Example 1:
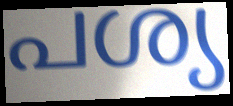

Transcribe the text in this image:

പശ്യ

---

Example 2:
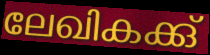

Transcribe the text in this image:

ലേഖികക്കു്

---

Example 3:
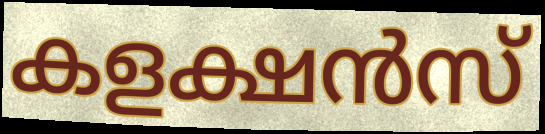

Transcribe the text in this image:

കളക്ഷൻസ്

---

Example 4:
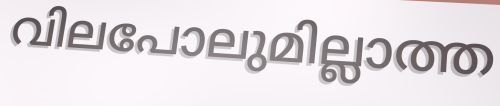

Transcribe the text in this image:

വിലപോലുമില്ലാത്ത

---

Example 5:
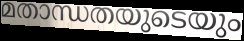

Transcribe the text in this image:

മതാന്ധതയുടെയും